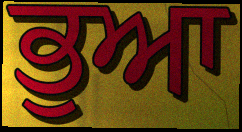
ਭੁਆ